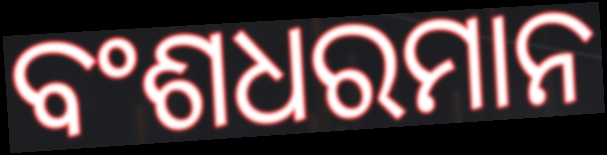
ବଂଶଧରମାନ